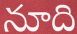
నూది